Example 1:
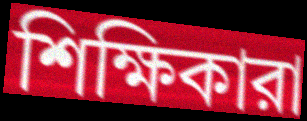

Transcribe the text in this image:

শিক্ষিকারা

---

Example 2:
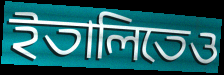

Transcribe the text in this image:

ইতালিতেও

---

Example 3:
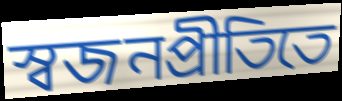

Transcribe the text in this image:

স্বজনপ্রীতিতে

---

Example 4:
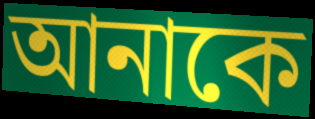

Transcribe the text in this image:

আনাকে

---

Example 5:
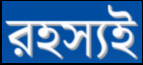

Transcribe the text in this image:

রহস্যই